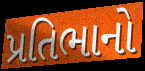
પ્રતિભાનો